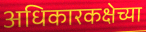
अधिकारकक्षेच्या